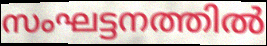
സംഘട്ടനത്തിൽ